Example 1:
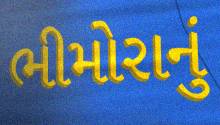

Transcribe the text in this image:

ભીમોરાનું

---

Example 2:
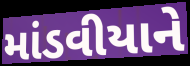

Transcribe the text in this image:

માંડવીયાને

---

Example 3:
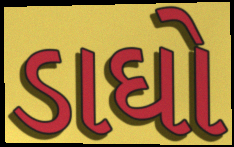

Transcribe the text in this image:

ડાઘો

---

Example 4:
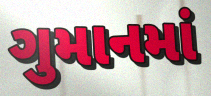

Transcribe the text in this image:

ગુમાનમાં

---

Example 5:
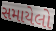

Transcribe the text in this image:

સમાયેલો